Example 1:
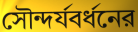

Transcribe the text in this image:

সৌন্দর্যবর্ধনের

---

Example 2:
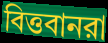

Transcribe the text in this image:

বিত্তবানরা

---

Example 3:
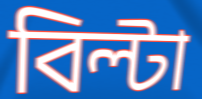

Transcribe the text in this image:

বিল্টা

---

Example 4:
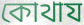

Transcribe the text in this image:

কোথায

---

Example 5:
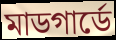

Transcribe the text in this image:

মাডগার্ডে